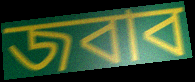
জবাব